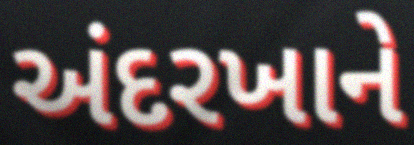
અંદરખાને